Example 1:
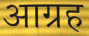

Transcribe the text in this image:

आग्रह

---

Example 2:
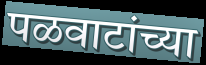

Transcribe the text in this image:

पळवाटांच्या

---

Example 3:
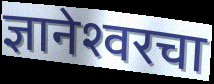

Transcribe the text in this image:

ज्ञानेश्वरचा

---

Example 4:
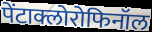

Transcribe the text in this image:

पेंटाक्लोरोफिनॉल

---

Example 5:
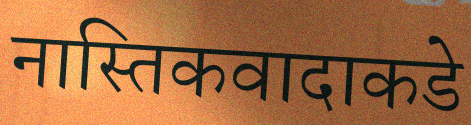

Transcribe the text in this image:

नास्तिकवादाकडे